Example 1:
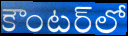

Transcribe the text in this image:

కౌంటర్‌లో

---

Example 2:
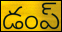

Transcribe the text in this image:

డంప్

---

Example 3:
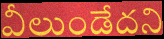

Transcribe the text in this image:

వీలుండేదని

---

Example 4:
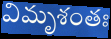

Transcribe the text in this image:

విమృశంతః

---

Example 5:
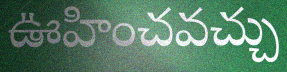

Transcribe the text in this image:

ఊహించవచ్చు